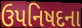
ઉપનિષદના